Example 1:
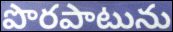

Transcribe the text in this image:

పొరపాటును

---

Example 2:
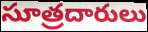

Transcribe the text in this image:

సూత్రదారులు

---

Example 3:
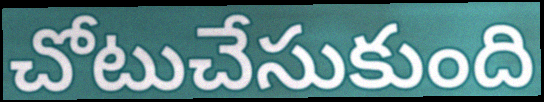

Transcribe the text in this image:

చోటుచేసుకుంది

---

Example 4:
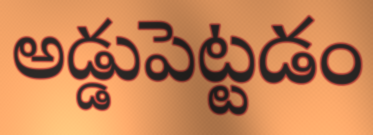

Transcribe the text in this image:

అడ్డుపెట్టడం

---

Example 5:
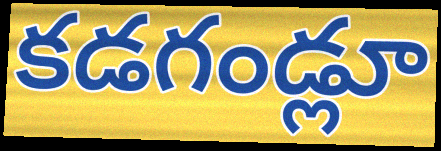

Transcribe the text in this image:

కడగండ్లూ